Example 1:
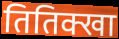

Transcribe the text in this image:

तितिक्खा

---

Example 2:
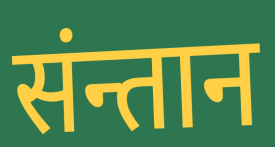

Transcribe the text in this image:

संन्तान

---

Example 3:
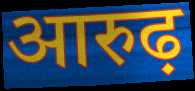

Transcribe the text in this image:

आरुढ़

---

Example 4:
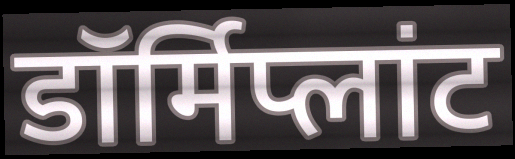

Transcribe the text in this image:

डॉर्मिप्लांट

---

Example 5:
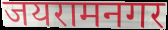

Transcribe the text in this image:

जयरामनगर